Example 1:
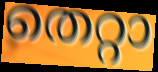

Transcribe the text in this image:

തെറ്റാ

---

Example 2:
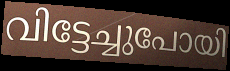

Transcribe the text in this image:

വിട്ടേച്ചുപോയി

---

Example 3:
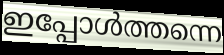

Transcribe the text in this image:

ഇപ്പോൾത്തന്നെ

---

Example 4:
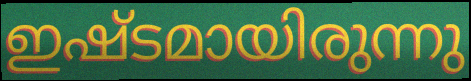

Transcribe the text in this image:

ഇഷ്ടമായിരുന്നു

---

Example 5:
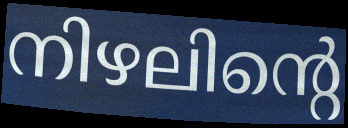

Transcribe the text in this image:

നിഴലിന്റെ